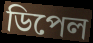
ডিপেল